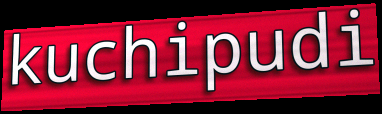
kuchipudi